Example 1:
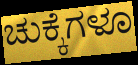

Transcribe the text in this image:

ಚುಕ್ಕೆಗಳೂ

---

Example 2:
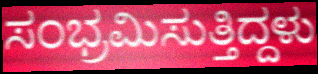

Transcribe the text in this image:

ಸಂಭ್ರಮಿಸುತ್ತಿದ್ದಳು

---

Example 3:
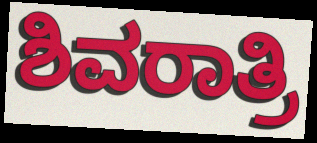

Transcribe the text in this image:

ಶಿವರಾತ್ರಿ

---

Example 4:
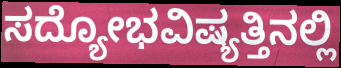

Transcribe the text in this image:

ಸದ್ಯೋಭವಿಷ್ಯತ್ತಿನಲ್ಲಿ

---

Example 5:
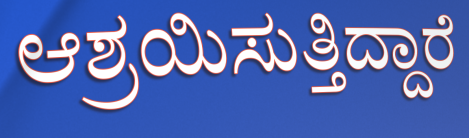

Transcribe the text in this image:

ಆಶ್ರಯಿಸುತ್ತಿದ್ದಾರೆ